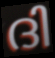
ദി